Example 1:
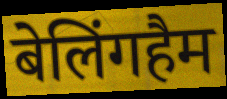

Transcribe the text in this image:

बेलिंगहैम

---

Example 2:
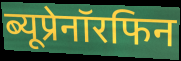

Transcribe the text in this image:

ब्यूप्रेनॉरफिन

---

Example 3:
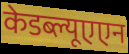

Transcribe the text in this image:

केडब्ल्यूएएन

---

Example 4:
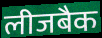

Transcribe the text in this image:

लीजबैक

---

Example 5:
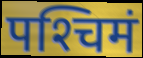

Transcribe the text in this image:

पश्चिमं